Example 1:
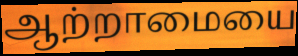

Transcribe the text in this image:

ஆற்றாமையை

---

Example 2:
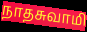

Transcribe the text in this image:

நாதசுவாமி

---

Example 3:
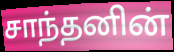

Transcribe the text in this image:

சாந்தனின்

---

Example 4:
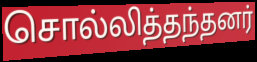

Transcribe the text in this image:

சொல்லித்தந்தனர்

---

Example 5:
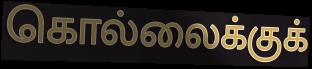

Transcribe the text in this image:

கொல்லைக்குக்